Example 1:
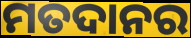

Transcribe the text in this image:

ମତଦାନର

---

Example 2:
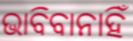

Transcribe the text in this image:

ଭାବିବାନାହିଁ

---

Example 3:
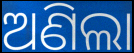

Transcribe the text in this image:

ଅଣିଲା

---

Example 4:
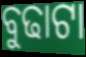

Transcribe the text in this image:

ବୁଢାଟା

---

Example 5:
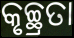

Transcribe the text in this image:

କୃଚ୍ଛ୍ରତା